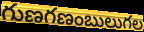
గుణగణంబులుగల